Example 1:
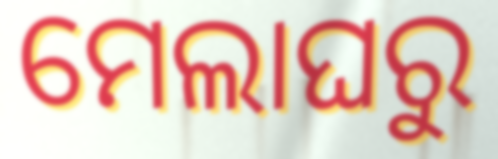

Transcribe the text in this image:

ମେଲାଘରୁ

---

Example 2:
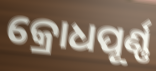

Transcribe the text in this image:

କ୍ରୋଧପୂର୍ଣ୍ଣ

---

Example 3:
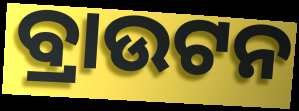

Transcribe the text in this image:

ବ୍ରାଉଟନ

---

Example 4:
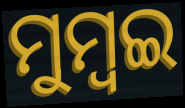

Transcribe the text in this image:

ମୁମ୍ୱଇ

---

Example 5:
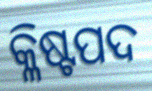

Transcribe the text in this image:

କ୍ଳିଷ୍ଟପଦ